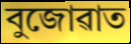
বুজোৱাত